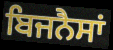
ਬਿਜਨੈਸਾਂ